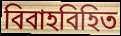
বিবাহবিহিত